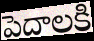
పెదాలకి